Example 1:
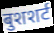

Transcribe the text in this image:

बुशशर्ट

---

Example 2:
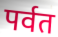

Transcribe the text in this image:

पर्वत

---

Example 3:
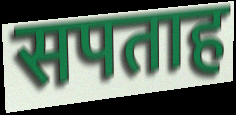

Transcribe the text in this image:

सपताह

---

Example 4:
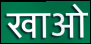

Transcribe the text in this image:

खाओ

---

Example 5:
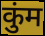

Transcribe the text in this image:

कुंम